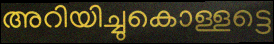
അറിയിച്ചുകൊള്ളട്ടെ